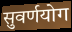
सुवर्णयोग